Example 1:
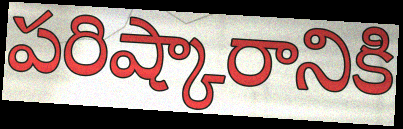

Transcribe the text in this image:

పరిష్కారానికి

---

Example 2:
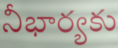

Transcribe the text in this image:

నీభార్యకు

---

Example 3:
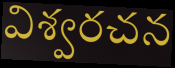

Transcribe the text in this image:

విశ్వరచన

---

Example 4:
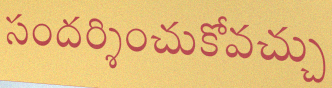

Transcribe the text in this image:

సందర్శించుకోవచ్చు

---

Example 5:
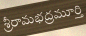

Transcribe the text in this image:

శ్రీరామభద్రమూర్తి